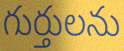
గుర్తులను